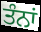
ਤੰਨਾਂ